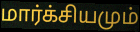
மார்க்சியமும்